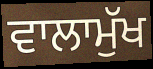
ਵਾਲਾਮੁੱਖ